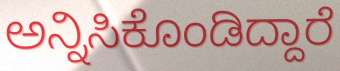
ಅನ್ನಿಸಿಕೊಂಡಿದ್ದಾರೆ